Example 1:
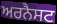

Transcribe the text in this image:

ਅਰਨੈਸਟ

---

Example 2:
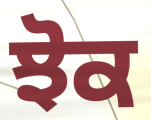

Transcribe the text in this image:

ਝੋਕ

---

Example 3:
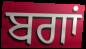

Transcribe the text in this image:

ਬਗਾਂ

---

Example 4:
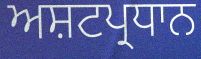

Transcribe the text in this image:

ਅਸ਼ਟਪ੍ਰਧਾਨ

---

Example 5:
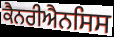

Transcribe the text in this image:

ਕੈਨਰੀਐਨਸਿਸ